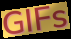
GIFs